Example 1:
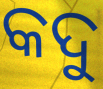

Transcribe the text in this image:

କଦୁ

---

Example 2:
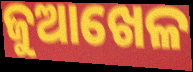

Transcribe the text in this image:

ଜୁଆଖେଳ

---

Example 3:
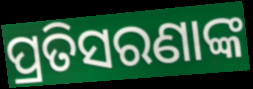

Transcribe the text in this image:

ପ୍ରତିସରଣାଙ୍କ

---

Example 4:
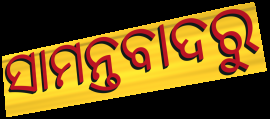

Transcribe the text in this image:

ସାମନ୍ତବାଦରୁ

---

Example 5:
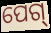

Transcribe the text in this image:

ପେଗ୍